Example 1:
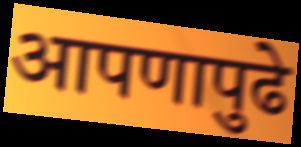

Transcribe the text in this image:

आपणापुढे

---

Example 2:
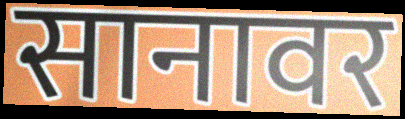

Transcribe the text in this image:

सानावर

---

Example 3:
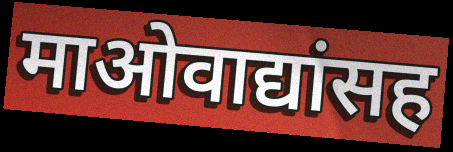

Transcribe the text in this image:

माओवाद्यांसह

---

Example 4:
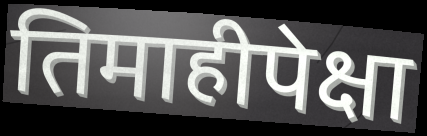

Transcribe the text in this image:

तिमाहीपेक्षा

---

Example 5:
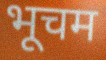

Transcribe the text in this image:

भूचम